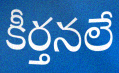
కీర్తనలే